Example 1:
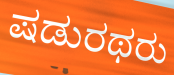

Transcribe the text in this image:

ಷಡುರಥರು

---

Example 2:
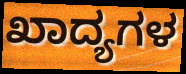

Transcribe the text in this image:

ಖಾದ್ಯಗಳ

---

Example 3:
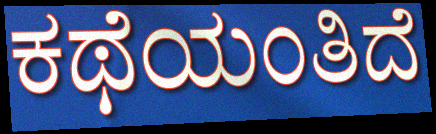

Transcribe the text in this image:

ಕಥೆಯಂತಿದೆ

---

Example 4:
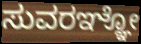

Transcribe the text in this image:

ಸುವರಞ್ಞೋ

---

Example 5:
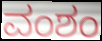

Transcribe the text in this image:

ವಂಶಂ